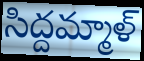
సిద్దమ్మాళ్